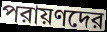
পরায়ণদের